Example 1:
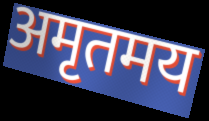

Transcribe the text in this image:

अमृतमय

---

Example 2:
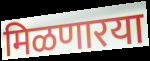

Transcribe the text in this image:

मिळणारया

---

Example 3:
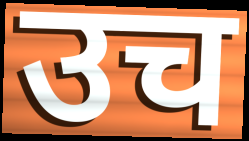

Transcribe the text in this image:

उच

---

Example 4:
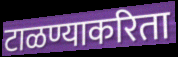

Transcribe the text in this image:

टाळण्याकरिता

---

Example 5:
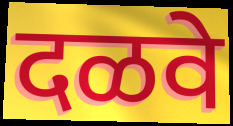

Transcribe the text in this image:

दळवे